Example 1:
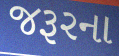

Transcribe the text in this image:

જરૂરના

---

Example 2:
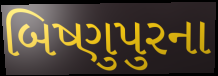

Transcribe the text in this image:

બિષ્ણુપુરના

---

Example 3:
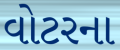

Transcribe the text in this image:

વોટરના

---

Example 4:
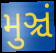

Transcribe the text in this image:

મુઞ્ચં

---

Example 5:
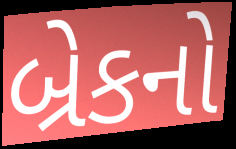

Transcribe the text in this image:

બ્રેકનો